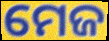
ମେଜ